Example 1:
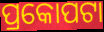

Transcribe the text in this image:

ପ୍ରକୋପଟା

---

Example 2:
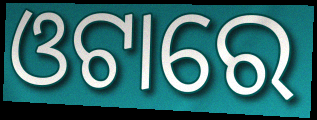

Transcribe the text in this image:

ଓଟାରେ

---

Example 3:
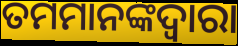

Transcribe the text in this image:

ତମମାନଙ୍କଦ୍ଵାରା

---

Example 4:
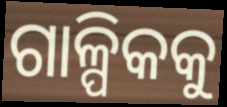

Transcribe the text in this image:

ଗାଳ୍ପିକକୁ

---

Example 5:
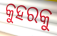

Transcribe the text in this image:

କୁହରକୁ